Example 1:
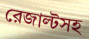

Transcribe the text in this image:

রেজাল্টসহ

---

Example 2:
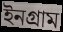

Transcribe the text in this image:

ইনগ্রাম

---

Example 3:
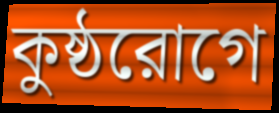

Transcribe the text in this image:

কুষ্ঠরোগে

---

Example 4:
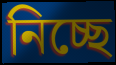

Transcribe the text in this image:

নিচ্ছে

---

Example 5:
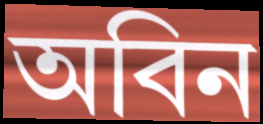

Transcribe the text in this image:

অবিন